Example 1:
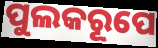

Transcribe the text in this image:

ପୁଲକରୂପେ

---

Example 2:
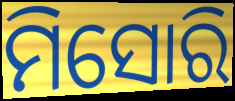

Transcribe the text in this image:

ମିସୋରି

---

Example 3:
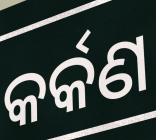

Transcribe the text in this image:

କର୍କଣ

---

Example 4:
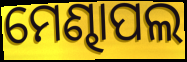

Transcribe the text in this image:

ମେଣ୍ଢାପଲ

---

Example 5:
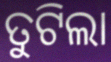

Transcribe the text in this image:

ତୁଟିଲା